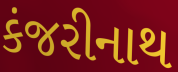
કંજરીનાથ